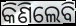
କିଣିଲେବି